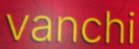
vanchi